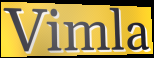
Vimla